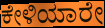
ಕೇಳಿಯಾರೇ